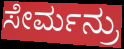
ಸೇರ್ಮನ್ರು